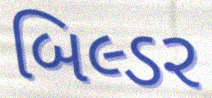
બિલ્ડર